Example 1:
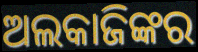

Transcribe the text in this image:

ଅଲକାଜିଙ୍କର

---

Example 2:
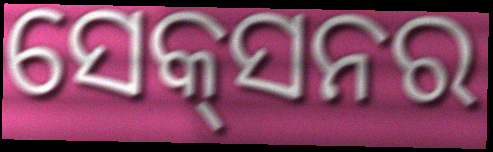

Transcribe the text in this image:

ସେକ୍‌ସନର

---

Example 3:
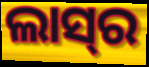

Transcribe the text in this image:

ଲାସ୍‌ର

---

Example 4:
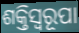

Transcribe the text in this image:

ଶକ୍ତିସ୍ବରୂପା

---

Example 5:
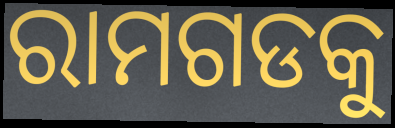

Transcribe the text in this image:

ରାମଗଡକୁ